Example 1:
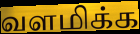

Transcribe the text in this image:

வளமிக்க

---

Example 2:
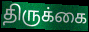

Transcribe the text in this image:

திருக்கை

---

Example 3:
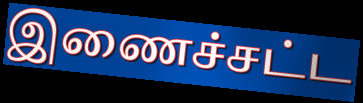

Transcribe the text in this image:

இணைச்சட்ட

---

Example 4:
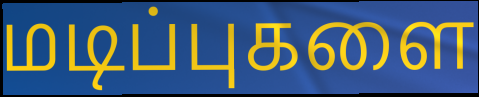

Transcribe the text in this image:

மடிப்புகளை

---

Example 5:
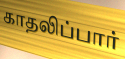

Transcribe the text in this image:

காதலிப்பார்